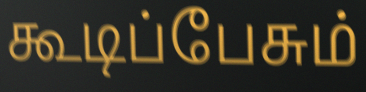
கூடிப்பேசும்